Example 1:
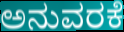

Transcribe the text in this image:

ಅನುವರಕೆ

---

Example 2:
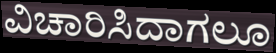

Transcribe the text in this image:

ವಿಚಾರಿಸಿದಾಗಲೂ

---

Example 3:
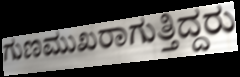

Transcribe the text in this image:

ಗುಣಮುಖರಾಗುತ್ತಿದ್ದರು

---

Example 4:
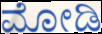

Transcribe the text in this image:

ಮೋಡಿ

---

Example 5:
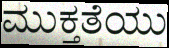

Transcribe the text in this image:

ಮುಕ್ತತೆಯು